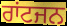
ਰਾਂਟਜਨ